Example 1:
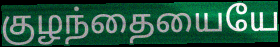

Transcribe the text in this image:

குழந்தையையே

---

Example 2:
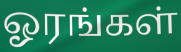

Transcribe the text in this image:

ஓரங்கள்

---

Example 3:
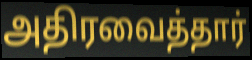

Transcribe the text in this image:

அதிரவைத்தார்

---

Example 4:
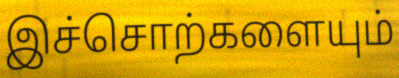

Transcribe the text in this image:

இச்சொற்களையும்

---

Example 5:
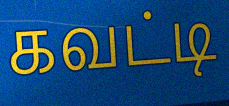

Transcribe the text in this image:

கவட்டி